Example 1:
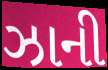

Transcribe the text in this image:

ઝાની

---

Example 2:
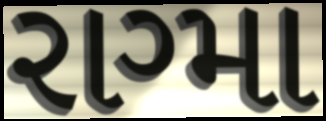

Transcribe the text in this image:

રાગ્મા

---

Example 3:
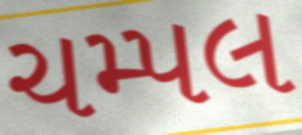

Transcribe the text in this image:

ચમ્પલ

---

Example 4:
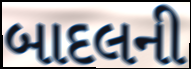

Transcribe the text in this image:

બાદલની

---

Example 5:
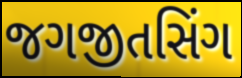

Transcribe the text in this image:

જગજીતસિંગ